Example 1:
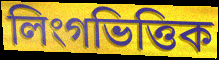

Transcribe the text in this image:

লিংগভিত্তিক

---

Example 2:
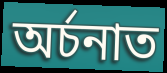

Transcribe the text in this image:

অৰ্চনাত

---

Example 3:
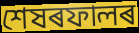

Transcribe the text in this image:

শেষৰফালৰ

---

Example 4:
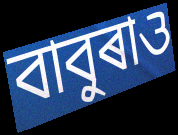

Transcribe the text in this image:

বাবুৰাও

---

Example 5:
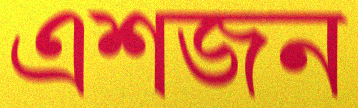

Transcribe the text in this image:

এশজন